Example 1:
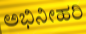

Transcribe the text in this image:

ಅಭಿನೀಹರಿ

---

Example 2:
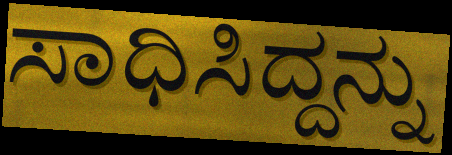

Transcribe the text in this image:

ಸಾಧಿಸಿದ್ದನ್ನು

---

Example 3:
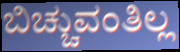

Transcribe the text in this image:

ಬಿಚ್ಚುವಂತಿಲ್ಲ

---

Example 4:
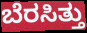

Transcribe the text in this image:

ಬೆರಸಿತ್ತು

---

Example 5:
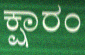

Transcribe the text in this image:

ಕ್ಷಾರಂ